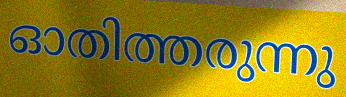
ഓതിത്തരുന്നു